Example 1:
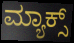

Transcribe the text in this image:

ಮ್ಯಾಕ್ಸ್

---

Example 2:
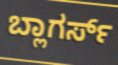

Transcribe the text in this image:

ಬ್ಲಾಗರ್ಸ್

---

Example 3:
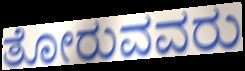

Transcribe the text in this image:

ತೋರುವವರು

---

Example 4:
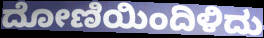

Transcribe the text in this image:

ದೋಣಿಯಿಂದಿಳಿದು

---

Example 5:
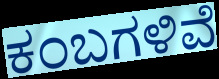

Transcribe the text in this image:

ಕಂಬಗಳಿವೆ